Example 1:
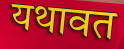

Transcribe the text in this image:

यथावत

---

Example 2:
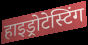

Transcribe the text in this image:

हाइड्रोटेस्टिंग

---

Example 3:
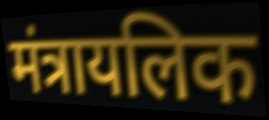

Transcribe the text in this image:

मंत्रायलिक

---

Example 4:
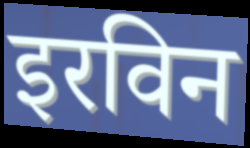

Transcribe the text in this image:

इरविन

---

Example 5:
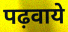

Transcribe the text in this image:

पढ़वाये